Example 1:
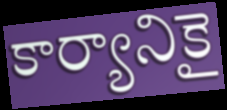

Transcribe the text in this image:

కార్యానికై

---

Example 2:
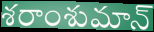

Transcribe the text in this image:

శరాంశుమాన్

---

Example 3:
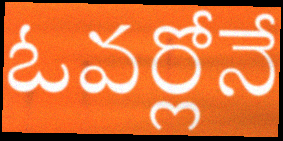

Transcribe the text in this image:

ఓవర్లోనే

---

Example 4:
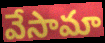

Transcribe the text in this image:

వేసామా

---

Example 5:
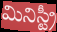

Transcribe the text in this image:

మినిస్ట్రీ